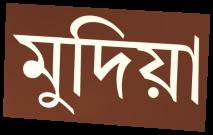
মুদিয়া